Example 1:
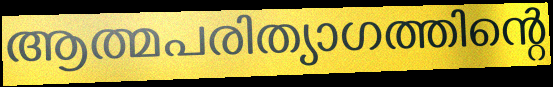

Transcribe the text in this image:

ആത്മപരിത്യാഗത്തിന്റെ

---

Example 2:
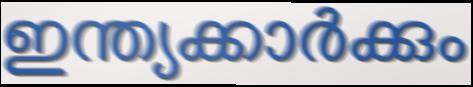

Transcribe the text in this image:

ഇന്ത്യക്കാർക്കും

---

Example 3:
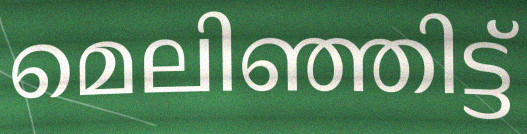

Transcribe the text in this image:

മെലിഞ്ഞിട്ട്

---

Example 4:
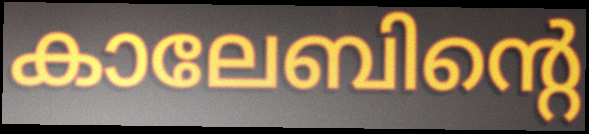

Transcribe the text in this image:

കാലേബിന്റെ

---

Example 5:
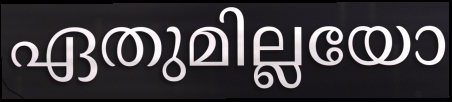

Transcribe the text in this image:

ഏതുമില്ലയോ